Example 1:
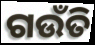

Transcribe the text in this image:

ଗଉଁତି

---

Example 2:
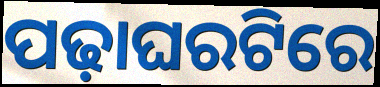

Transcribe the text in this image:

ପଢ଼ାଘରଟିରେ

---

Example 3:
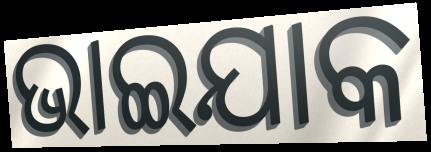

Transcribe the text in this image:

ଭାଇଯାକ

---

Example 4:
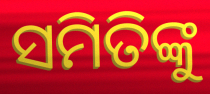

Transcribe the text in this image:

ସମିତିଙ୍କୁ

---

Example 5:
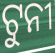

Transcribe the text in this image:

ଟୁନୀ